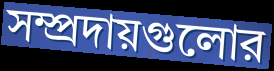
সম্প্রদায়গুলোর